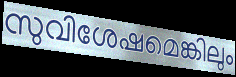
സുവിശേഷമെങ്കിലും